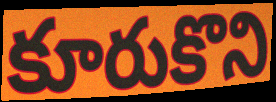
కూరుకొని